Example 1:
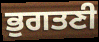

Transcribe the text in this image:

ਭੁਗਤਣੀ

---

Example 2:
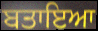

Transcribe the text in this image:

ਬਤਾਇਆ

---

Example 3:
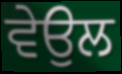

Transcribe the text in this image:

ਵੇਉਲ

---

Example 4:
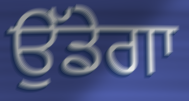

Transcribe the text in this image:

ਉੱਡੇਗਾ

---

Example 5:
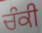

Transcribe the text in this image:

ਚੰਕੀ